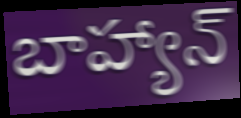
బాహ్యాన్